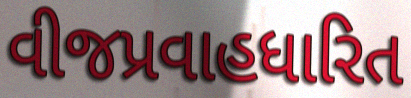
વીજપ્રવાહધારિત